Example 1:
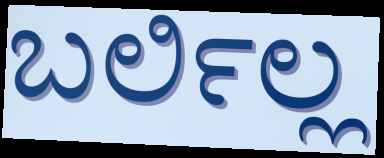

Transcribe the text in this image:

ಬರ್ಲಿಲ್ಲ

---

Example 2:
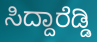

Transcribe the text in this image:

ಸಿದ್ದಾರೆಡ್ಡಿ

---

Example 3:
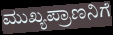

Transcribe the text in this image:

ಮುಖ್ಯಪ್ರಾಣನಿಗೆ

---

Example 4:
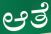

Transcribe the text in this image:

ಆತೆ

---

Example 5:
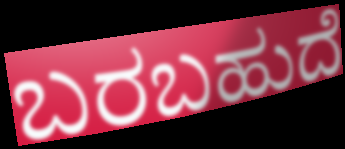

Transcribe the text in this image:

ಬರಬಹುದೆ